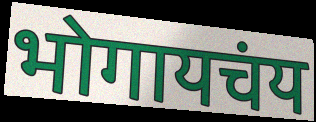
भोगायचंय